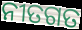
ନୀତଗତ